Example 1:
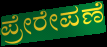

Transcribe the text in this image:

ಪ್ರೇರೇಪಣೆ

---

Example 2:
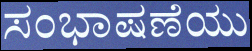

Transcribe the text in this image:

ಸಂಭಾಷಣೆಯು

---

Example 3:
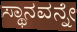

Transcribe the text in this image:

ಸ್ಥಾನವನ್ನೇ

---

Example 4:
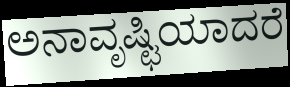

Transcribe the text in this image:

ಅನಾವೃಷ್ಟಿಯಾದರೆ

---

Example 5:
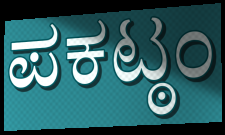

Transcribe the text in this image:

ಪಕಟ್ಠಂ